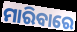
ମାରିବାରେ